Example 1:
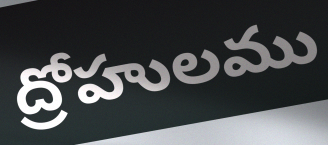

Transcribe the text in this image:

ద్రోహులము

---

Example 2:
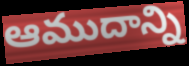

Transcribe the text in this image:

ఆముదాన్ని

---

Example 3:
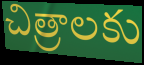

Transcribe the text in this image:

చిత్రాలకు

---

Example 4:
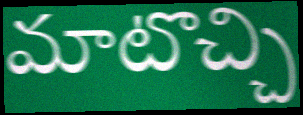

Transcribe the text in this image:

మాటొచ్చి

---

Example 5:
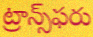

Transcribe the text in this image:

ట్రాన్స్‌ఫరు